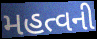
મહત્વની